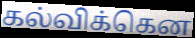
கல்விக்கென